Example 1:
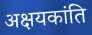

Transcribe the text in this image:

अक्षयकांति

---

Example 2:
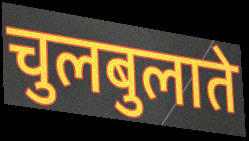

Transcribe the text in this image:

चुलबुलाते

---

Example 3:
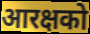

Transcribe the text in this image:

आरक्षको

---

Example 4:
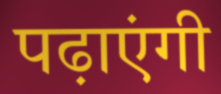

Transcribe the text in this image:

पढ़ाएंगी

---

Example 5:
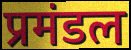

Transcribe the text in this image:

प्रमंडल